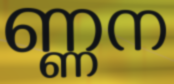
ണ്ണന